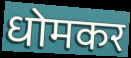
धोमकर